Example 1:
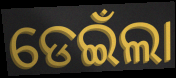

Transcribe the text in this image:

ଡେଇଁଲା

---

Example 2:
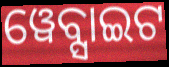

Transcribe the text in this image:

ୱେବ୍ସାଇଟ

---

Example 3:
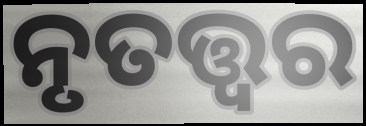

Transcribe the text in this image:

ନୃତତ୍ତ୍ଵର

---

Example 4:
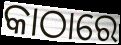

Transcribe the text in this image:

କାଠାରେ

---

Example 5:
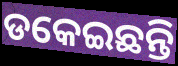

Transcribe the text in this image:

ଡକେଇଛନ୍ତି